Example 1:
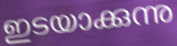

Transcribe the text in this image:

ഇടയാക്കുന്നു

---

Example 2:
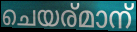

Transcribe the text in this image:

ചെയര്മാന്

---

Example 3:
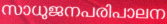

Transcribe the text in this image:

സാധുജനപരിപാലന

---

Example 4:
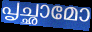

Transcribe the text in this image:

പൃച്ഛാമോ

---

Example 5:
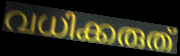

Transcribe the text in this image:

വധിക്കരുത്